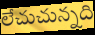
లేచుచున్నది